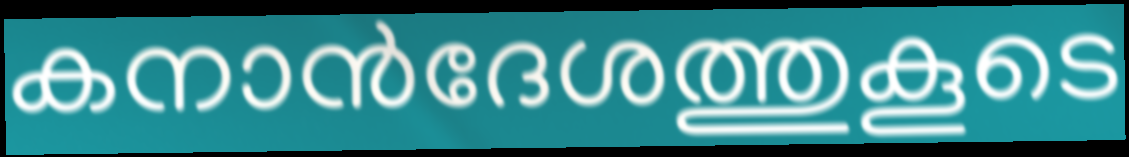
കനാൻദേശത്തുകൂടെ